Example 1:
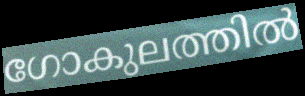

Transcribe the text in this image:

ഗോകുലത്തിൽ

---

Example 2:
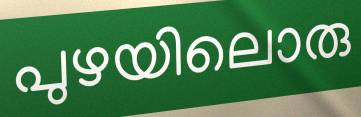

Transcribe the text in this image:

പുഴയിലൊരു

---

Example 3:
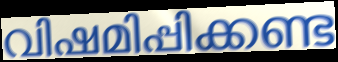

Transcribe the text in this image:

വിഷമിപ്പിക്കണ്ട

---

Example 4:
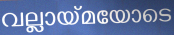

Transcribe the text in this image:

വല്ലായ്മയോടെ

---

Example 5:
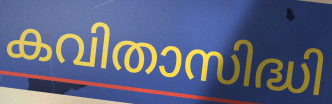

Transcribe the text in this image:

കവിതാസിദ്ധി